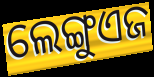
ଲେଙ୍ଗୁଏଜ